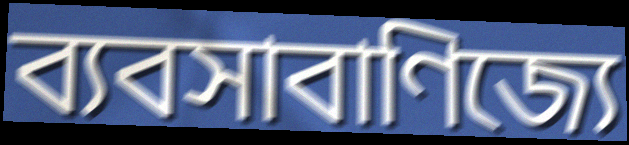
ব্যবসাবাণিজ্যে